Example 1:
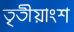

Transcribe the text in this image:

তৃতীয়াংশ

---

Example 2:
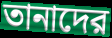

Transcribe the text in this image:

তানাদের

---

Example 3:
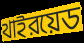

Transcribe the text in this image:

থাইরয়েড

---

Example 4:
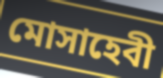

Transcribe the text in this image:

মোসাহেবী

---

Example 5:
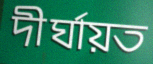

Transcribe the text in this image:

দীর্ঘায়ত